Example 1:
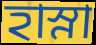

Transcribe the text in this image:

হাস্না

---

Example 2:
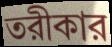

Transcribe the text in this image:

তরীকার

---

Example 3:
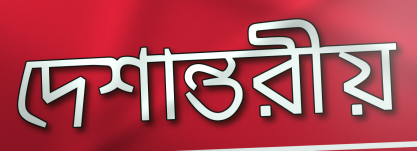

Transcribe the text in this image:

দেশান্তরীয়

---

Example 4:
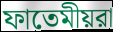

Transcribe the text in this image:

ফাতেমীয়রা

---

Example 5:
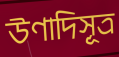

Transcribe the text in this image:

উণাদিসূত্র